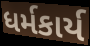
ધર્મકાર્ય